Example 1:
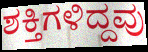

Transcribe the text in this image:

ಶಕ್ತಿಗಳಿದ್ದವು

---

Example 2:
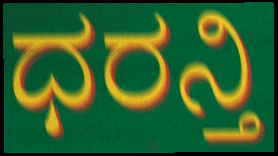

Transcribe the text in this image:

ಧರನ್ತಿ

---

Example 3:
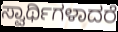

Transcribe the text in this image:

ಸ್ವಾರ್ಥಿಗಳಾದರೆ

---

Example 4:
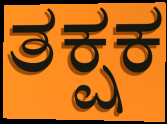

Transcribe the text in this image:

ತಕ್ಷಕ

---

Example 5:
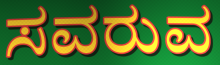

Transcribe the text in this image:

ಸವರುವ